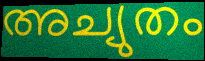
അച്യുതം